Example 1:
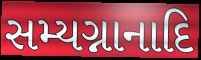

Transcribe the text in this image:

સમ્યગ્નાનાદિ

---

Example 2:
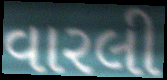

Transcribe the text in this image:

વારલી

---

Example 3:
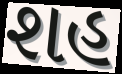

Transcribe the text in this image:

શહ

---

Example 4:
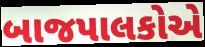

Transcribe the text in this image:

બાજપાલકોએ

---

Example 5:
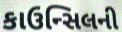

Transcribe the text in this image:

કાઉન્સિલની